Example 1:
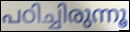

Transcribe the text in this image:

പഠിച്ചിരുന്നൂ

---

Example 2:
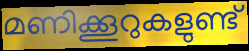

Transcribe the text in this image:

മണിക്കൂറുകളുണ്ട്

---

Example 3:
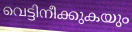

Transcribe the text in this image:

വെട്ടിനീക്കുകയും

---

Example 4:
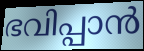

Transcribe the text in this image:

ഭവിപ്പാൻ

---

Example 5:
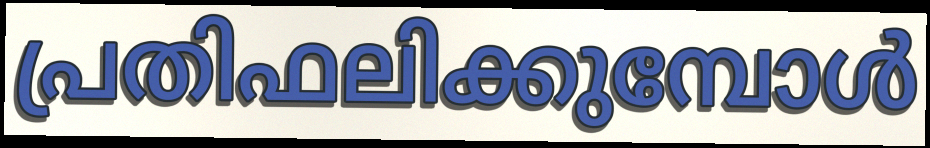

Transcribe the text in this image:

പ്രതിഫലിക്കുമ്പോൾ